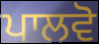
ਪਾਲਵੋ